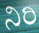
ನಿರಿ